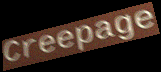
Creepage